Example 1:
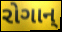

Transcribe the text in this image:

રોગાન્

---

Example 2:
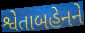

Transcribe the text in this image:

શ્વેતાબહેનને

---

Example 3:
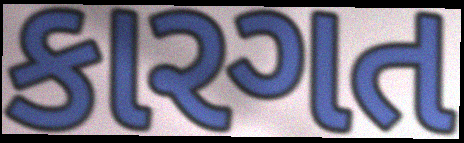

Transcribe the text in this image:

કારગત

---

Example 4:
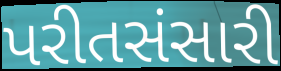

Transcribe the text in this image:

પરીતસંસારી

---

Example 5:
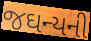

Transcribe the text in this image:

જઘન્યની